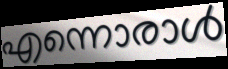
എന്നൊരാൾ